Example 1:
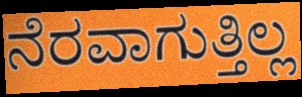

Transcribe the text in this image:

ನೆರವಾಗುತ್ತಿಲ್ಲ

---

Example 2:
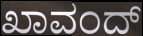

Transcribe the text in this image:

ಖಾವಂದ್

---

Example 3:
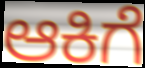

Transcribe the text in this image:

ಆಕಿಗೆ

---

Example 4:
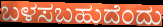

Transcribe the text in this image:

ಬಳಸಬಹುದೆಂದು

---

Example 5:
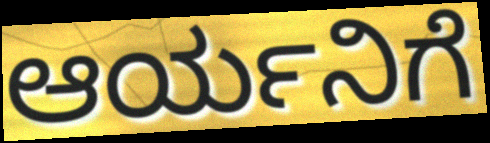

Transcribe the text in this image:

ಆರ್ಯನಿಗೆ